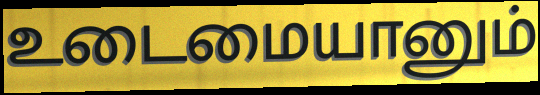
உடைமையானும்